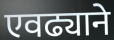
एवढ्याने